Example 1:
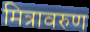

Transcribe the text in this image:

मित्रावरुण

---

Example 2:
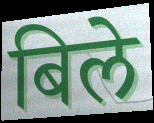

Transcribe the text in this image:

बिले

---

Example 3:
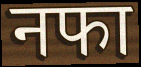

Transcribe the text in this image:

नफा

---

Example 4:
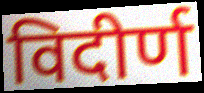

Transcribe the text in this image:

विदीर्ण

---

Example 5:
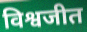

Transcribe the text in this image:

विश्वजीत